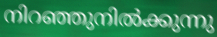
നിറഞ്ഞുനിൽക്കുന്നു